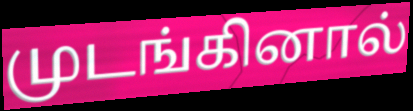
முடங்கினால்